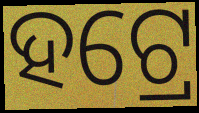
ହଟ୍ରେ